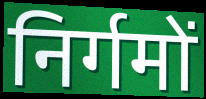
निर्गमों